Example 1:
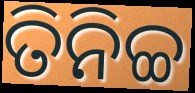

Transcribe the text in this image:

ତିନିଚ୍ଚ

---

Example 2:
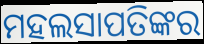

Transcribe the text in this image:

ମହଲସାପତିଙ୍କର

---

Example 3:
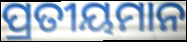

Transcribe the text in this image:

ପ୍ରତୀୟମାନ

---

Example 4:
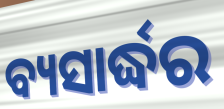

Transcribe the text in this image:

ବ୍ୟସାର୍ଦ୍ଧର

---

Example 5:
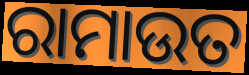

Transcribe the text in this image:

ରାମାଉତ